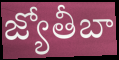
జ్యోతీబా